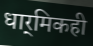
धार्मिकही